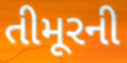
તીમૂરની